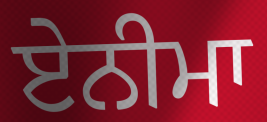
ਏਨੀਮਾ